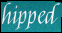
hipped